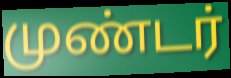
முண்டர்